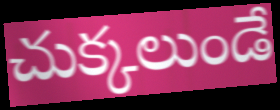
చుక్కలుండే